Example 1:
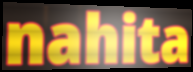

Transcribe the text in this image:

nahita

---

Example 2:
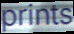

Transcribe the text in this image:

prints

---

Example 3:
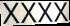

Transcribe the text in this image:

XXXX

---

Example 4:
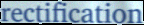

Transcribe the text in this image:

rectification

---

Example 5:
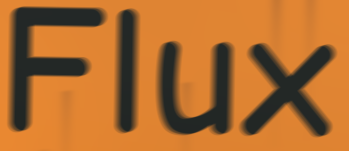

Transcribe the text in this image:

Flux